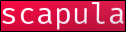
scapula